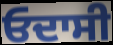
ਓਦਾਸੀ